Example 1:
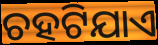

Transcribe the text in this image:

ଚହଟିଯାଏ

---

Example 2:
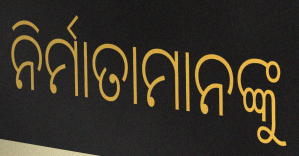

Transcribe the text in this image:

ନିର୍ମାତାମାନଙ୍କୁ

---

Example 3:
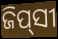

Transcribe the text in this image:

ଜିପ୍‍ସୀ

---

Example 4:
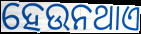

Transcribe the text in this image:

ହେଉନଥାଏ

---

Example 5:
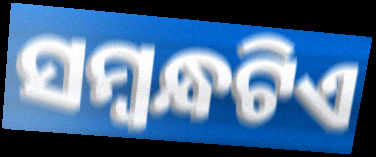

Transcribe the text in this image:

ସମ୍ବନ୍ଧଟିଏ